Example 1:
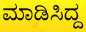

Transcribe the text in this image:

ಮಾಡಿಸಿದ್ದ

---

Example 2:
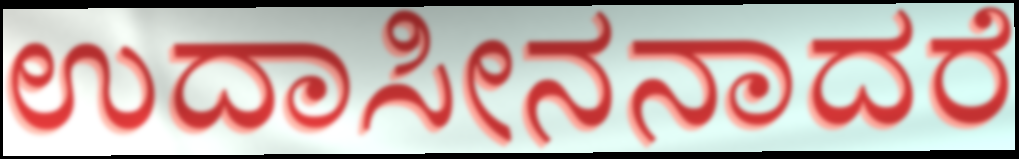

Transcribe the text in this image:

ಉದಾಸೀನನಾದರೆ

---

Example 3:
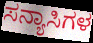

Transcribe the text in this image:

ಸನ್ಯಾಸಿಗಳ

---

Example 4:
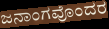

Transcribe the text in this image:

ಜನಾಂಗವೊಂದರ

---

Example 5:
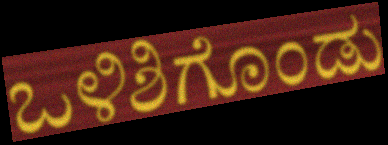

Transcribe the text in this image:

ಒಳಿಶಿಗೊಂಡು